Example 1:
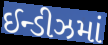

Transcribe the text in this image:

ઈન્ડીઝમાં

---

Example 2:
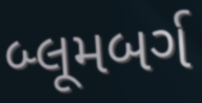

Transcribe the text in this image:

બ્લૂમબર્ગ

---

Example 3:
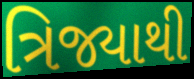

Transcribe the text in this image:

ત્રિજ્યાથી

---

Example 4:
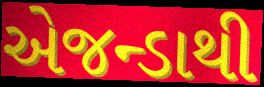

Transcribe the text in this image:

એજન્ડાથી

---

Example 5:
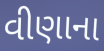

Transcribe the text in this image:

વીણાના